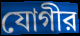
যোগীর